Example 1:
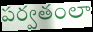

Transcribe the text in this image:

పర్వతంలా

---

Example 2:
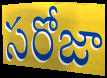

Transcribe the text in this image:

సరోజా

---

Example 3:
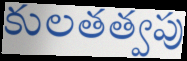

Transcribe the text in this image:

కులతత్వపు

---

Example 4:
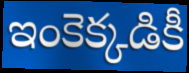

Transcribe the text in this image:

ఇంకెక్కడికీ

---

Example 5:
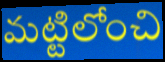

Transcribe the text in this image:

మట్టిలోంచి